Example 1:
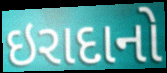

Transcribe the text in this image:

ઇરાદાનો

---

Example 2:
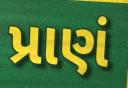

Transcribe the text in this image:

પ્રાણં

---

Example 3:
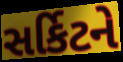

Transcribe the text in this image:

સર્કિટને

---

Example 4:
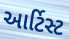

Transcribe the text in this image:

આર્ટિસ્ટ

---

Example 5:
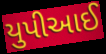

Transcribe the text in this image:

યુપીઆઈ